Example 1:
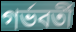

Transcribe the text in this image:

গর্ভবর্তী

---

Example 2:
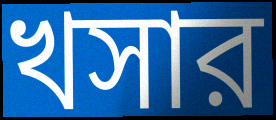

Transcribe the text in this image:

খসার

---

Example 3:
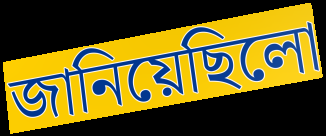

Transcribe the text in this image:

জানিয়েছিলো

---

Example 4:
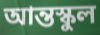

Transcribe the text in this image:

আন্তস্কুল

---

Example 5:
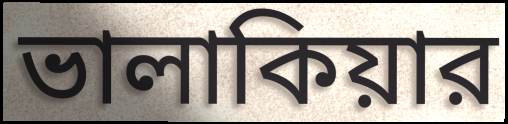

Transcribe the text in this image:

ভালাকিয়ার